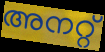
അനറ്റ്